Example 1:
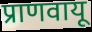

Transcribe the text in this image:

प्राणवायू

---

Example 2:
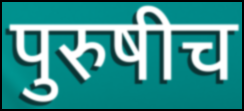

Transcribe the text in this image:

पुरुषीच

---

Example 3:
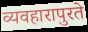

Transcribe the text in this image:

व्यवहारापुरते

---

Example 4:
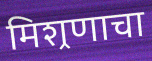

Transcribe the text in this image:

मिश्रणाचा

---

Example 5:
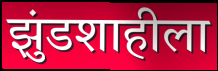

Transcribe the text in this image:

झुंडशाहीला